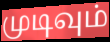
முடிவும்